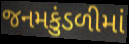
જનમકુંડળીમાં